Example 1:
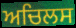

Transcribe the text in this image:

ਅਚਿਲਸ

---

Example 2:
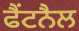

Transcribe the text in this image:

ਫੈਂਟਨੈਲ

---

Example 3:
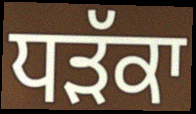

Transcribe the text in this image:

ਧੜੱਕਾ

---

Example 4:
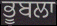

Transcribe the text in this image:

ਭੂਬਲਾ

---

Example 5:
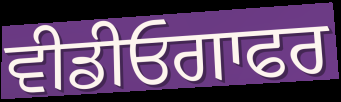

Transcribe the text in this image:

ਵੀਡੀਓਗਾਫਰ